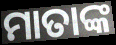
ମାତାଙ୍କ